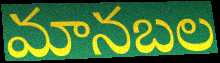
మానబల